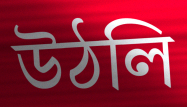
উঠলি